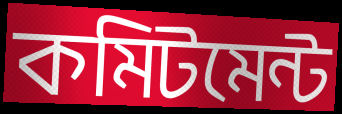
কমিটমেন্ট